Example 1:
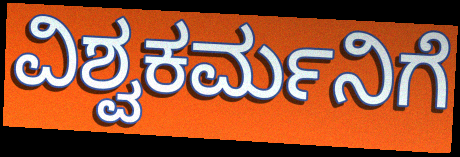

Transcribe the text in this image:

ವಿಶ್ವಕರ್ಮನಿಗೆ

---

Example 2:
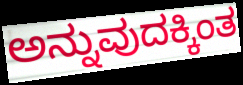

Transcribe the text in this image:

ಅನ್ನುವುದಕ್ಕಿಂತ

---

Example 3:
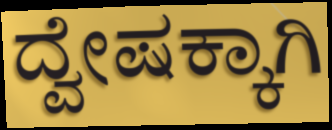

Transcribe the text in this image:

ದ್ವೇಷಕ್ಕಾಗಿ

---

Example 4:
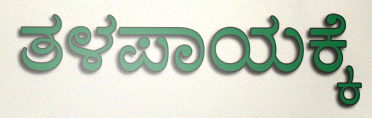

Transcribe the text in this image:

ತಳಪಾಯಕ್ಕೆ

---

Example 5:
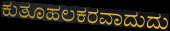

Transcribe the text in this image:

ಕುತೂಹಲಕರವಾದುದು